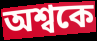
অশ্বকে